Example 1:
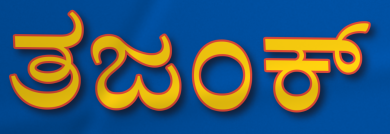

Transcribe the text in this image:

ತಜಂಕ್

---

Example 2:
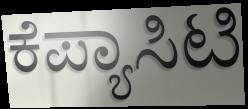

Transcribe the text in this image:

ಕೆಪ್ಯಾಸಿಟಿ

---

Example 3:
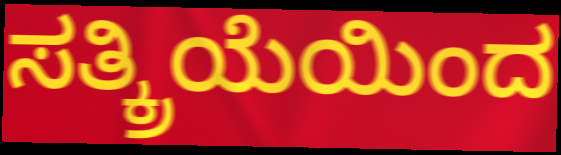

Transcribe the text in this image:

ಸತ್ಕ್ರಿಯೆಯಿಂದ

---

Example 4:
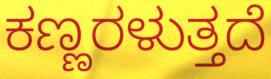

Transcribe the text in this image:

ಕಣ್ಣರಳುತ್ತದೆ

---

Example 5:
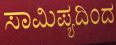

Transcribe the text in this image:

ಸಾಮಿಪ್ಯದಿಂದ